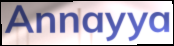
Annayya